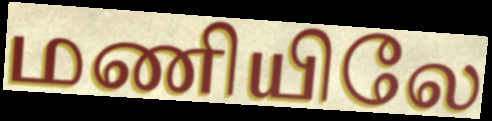
மணியிலே